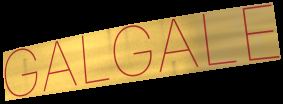
GALGALE